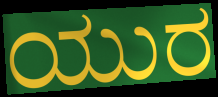
ಯುರ